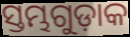
ସ୍ତମ୍ଭଗୁଡ଼ାକ